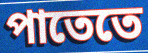
পাতেতে